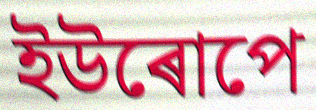
ইউৰোপে